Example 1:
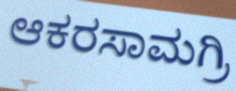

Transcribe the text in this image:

ಆಕರಸಾಮಗ್ರಿ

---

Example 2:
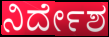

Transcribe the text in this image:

ನಿರ್ದೇಶ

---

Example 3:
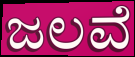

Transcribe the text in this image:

ಜಲವೆ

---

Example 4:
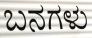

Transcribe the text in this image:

ಬನಗಳು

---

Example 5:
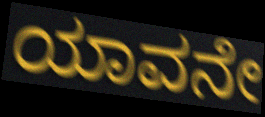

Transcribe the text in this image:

ಯಾವನೇ